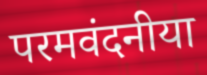
परमवंदनीया